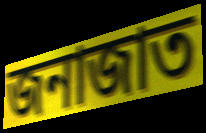
জনাজাত